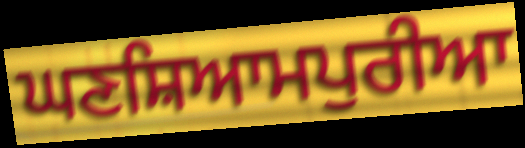
ਘਣਸ਼ਿਆਮਪੁਰੀਆ